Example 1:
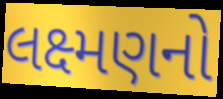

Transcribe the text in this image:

લક્ષ્મણનો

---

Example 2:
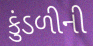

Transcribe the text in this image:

કુંડળીની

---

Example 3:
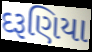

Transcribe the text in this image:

દરૂણિયા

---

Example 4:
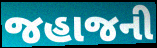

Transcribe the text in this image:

જહાજની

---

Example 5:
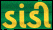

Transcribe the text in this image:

ડાંડી